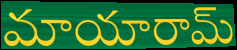
మాయారామ్